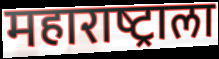
महाराष्ट्राला